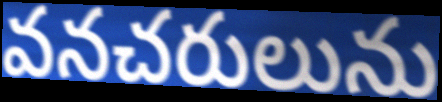
వనచరులును